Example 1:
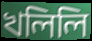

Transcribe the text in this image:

খলিলি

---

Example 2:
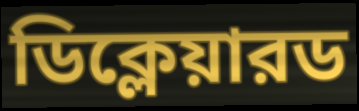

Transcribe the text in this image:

ডিক্লেয়ারড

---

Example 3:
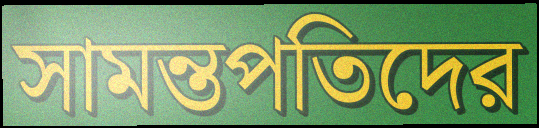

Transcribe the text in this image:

সামন্তপতিদের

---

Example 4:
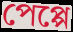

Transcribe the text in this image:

পেপ্পে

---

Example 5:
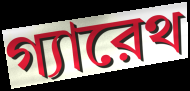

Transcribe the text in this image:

গ্যারেথ